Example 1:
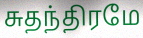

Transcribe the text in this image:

சுதந்திரமே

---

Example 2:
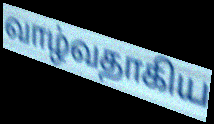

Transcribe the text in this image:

வாழ்வதாகிய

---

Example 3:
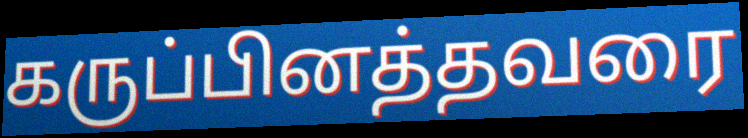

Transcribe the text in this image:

கருப்பினத்தவரை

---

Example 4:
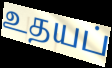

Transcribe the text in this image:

உதயப்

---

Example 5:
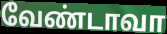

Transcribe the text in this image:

வேண்டாவா